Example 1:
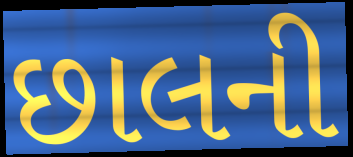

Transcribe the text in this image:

છાલની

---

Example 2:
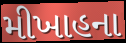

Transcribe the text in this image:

મીખાહના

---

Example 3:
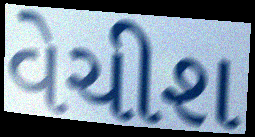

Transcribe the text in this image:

વેચીશ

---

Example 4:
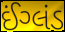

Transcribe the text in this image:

ઈંગ્લંડ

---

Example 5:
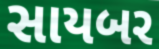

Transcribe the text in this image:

સાયબર